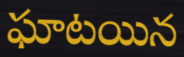
ఘాటయిన